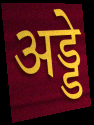
अड्डे